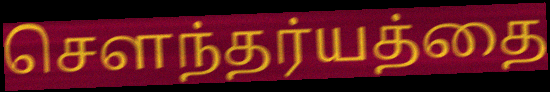
செளந்தர்யத்தை